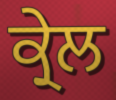
ਕ੍ਰੇਲ